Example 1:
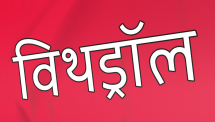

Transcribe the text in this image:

विथड्रॉल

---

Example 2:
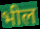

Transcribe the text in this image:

भील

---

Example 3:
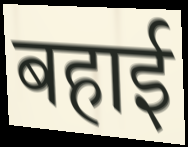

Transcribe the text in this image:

बहाई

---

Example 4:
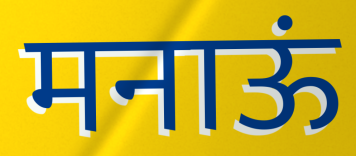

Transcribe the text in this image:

मनाऊं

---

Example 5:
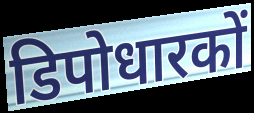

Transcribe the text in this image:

डिपोधारकों